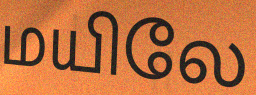
மயிலே